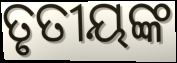
ତୃତୀୟଙ୍କ